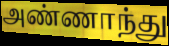
அண்ணாந்து